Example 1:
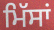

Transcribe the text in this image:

ਮਿੱਸਾਂ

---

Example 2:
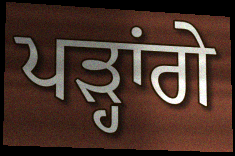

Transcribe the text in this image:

ਪੜ੍ਹਾਂਗੇ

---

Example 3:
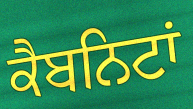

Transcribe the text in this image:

ਕੈਬਨਿਟਾਂ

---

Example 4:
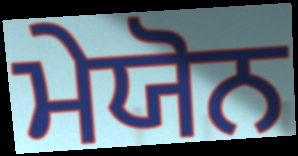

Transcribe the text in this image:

ਮੇਯੋਨ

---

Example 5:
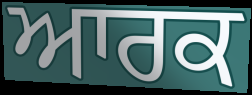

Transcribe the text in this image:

ਆਰਕ